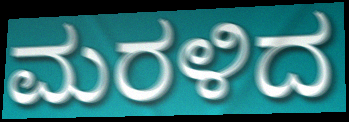
ಮರಳಿದ